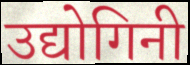
उद्योगिनी